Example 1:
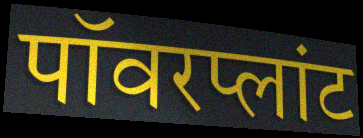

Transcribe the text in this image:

पॉवरप्लांट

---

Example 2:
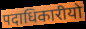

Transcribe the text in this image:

पदाधिकारीयो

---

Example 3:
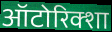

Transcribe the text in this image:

ऑटोरिक्‍शा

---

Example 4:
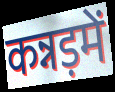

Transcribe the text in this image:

कन्नड़में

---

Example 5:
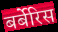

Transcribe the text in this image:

बर्बेरिस